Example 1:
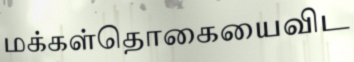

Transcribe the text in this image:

மக்கள்தொகையைவிட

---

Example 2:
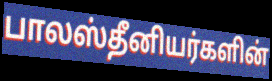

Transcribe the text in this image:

பாலஸ்தீனியர்களின்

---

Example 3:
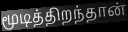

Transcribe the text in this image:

மூடித்திறந்தான்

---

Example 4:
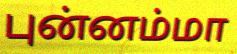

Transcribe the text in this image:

புன்னம்மா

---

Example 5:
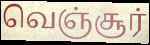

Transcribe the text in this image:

வெஞ்சூர்